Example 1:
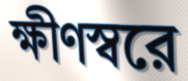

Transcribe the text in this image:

ক্ষীণস্বরে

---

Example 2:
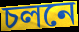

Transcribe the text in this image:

চলনে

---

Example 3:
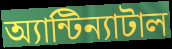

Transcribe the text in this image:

অ্যান্টিন্যাটাল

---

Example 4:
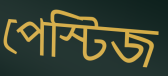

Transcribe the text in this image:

পেস্টিজ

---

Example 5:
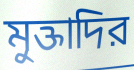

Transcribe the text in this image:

মুক্তাদির